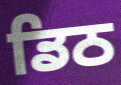
ਡਿਠ